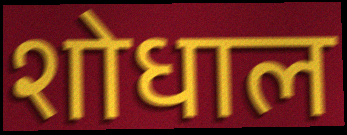
शोधाल